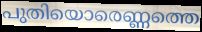
പുതിയൊരെണ്ണത്തെ